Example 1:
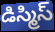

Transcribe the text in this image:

డిస్మిస్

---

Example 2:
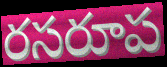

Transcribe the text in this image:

రసరూప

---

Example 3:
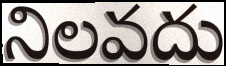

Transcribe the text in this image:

నిలవదు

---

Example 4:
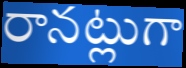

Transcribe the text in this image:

రానట్లుగా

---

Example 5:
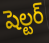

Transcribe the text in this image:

షెల్టర్